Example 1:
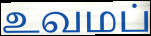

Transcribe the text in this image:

உவமப்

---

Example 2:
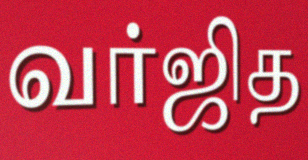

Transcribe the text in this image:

வர்ஜித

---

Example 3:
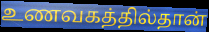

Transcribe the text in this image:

உணவகத்தில்தான்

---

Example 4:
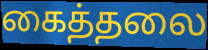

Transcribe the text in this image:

கைத்தலை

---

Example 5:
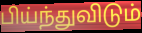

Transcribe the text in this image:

பிய்ந்துவிடும்